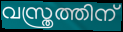
വസ്ത്രത്തിന്